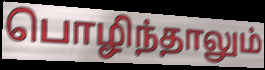
பொழிந்தாலும்